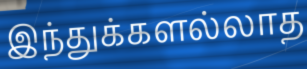
இந்துக்களல்லாத